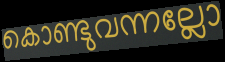
കൊണ്ടുവന്നല്ലോ